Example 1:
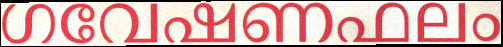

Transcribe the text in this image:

ഗവേഷണഫലം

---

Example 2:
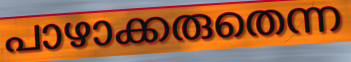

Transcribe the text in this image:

പാഴാക്കരുതെന്ന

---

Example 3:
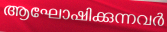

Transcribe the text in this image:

ആഘോഷിക്കുന്നവർ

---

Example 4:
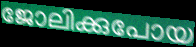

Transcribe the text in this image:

ജോലിക്കുപോയ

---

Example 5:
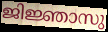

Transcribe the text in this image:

ജിജ്ഞാസു